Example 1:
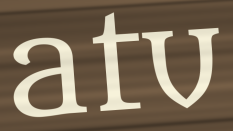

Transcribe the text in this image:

atu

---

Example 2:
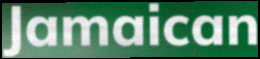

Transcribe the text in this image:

Jamaican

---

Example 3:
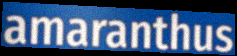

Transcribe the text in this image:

amaranthus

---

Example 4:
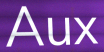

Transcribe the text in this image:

Aux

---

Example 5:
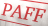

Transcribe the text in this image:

PAFF